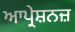
ਆਪ੍ਰੇਸ਼ਨਜ਼